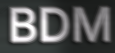
BDM